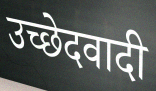
उच्छेदवादी